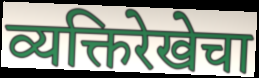
व्यक्तिरेखेचा